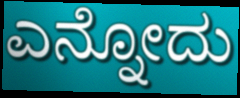
ಎನ್ನೋದು